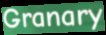
Granary